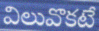
విలువొకటే